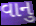
વાનુ